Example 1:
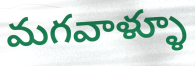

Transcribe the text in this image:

మగవాళ్ళూ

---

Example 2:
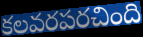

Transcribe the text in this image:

కలవరపరచింది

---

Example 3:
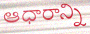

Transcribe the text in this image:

ఆధారాన్ని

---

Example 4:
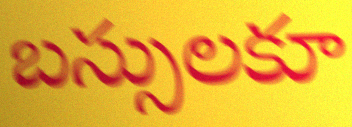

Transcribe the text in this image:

బస్సులకూ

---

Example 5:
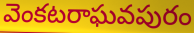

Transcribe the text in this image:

వెంకటరాఘవపురం